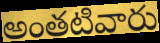
అంతటివారు